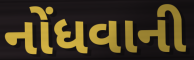
નોંધવાની